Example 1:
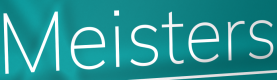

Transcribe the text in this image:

Meisters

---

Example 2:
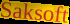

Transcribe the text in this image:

Saksoft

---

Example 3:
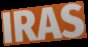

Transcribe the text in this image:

IRAS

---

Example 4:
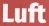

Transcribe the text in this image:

Luft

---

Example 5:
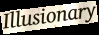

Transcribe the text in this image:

Illusionary